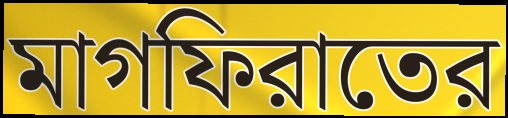
মাগফিরাতের